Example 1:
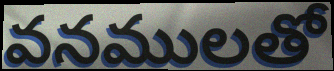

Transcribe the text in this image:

వనములతో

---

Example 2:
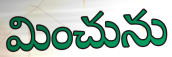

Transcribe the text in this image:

మించును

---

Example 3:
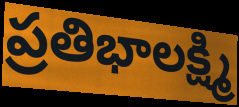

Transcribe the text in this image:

ప్రతిభాలక్ష్మి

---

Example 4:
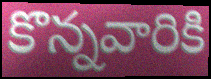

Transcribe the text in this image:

కొన్నవారికి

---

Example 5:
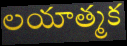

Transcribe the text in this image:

లయాత్మక